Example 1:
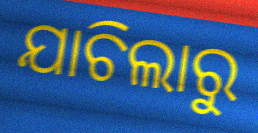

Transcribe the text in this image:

ଯାଚିଲାରୁ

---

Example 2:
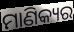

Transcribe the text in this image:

ମାଣିକ୍ୟର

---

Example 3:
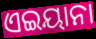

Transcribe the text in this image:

ଏଇୟାନା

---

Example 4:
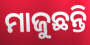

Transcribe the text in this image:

ମାଜୁଛନ୍ତି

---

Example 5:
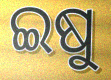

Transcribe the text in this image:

ଇଷୁ